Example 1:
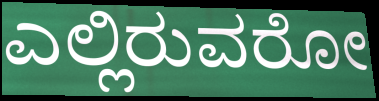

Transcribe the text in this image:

ಎಲ್ಲಿರುವರೋ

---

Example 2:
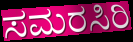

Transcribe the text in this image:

ಸಮರಸಿರಿ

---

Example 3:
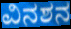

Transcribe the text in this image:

ವಿನಶನ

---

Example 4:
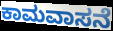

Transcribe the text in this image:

ಕಾಮವಾಸನೆ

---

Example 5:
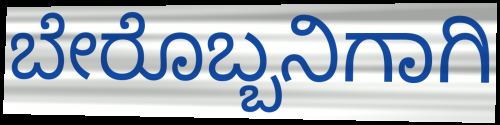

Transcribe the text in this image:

ಬೇರೊಬ್ಬನಿಗಾಗಿ